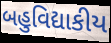
બહુવિદ્યાકીય